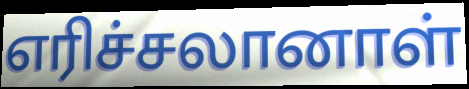
எரிச்சலானாள்